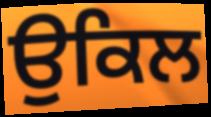
ਉਕਿਲ